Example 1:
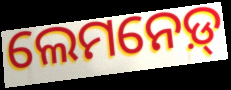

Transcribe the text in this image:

ଲେମନେଡ଼୍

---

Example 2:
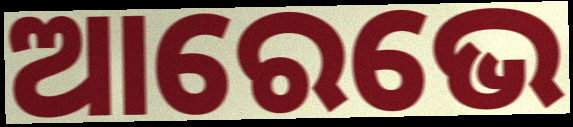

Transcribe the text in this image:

ଆରେଭେ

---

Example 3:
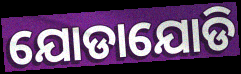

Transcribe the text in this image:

ଯୋଡାଯୋଡି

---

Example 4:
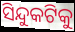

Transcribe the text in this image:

ସିନ୍ଦୁକଟିକୁ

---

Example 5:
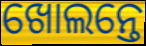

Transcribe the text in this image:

ଖୋଲନ୍ତେ